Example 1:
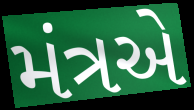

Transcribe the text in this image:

મંત્રએ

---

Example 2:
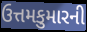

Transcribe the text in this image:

ઉત્તમકુમારની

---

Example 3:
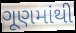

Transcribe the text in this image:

ગૂણમાંથી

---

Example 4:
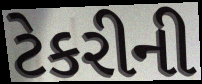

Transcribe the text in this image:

ટેકરીની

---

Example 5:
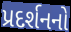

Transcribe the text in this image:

પ્રદર્શનનો